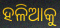
ହଳିଆକୁ